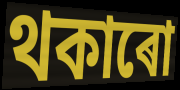
থকাৰো